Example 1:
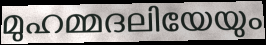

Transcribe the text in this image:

മുഹമ്മദലിയേയും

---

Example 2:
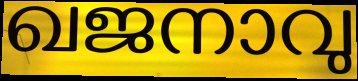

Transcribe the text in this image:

ഖജനാവു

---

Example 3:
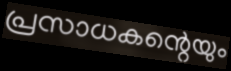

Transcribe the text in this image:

പ്രസാധകന്റെയും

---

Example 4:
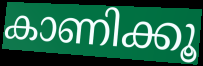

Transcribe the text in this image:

കാണിക്കൂ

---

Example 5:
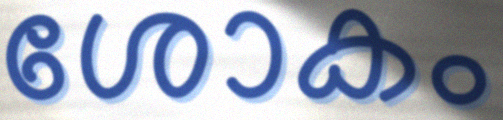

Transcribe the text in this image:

ശോകം